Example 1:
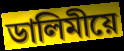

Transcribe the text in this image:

ডালিমীয়ে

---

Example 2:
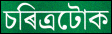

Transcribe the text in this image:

চৰিত্ৰটোক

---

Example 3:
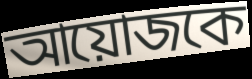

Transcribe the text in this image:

আয়োজকে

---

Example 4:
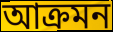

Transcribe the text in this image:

আক্ৰমন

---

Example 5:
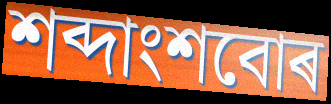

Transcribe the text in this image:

শব্দাংশবোৰ